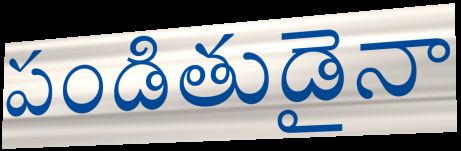
పండితుడైనా